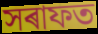
সৰাফত